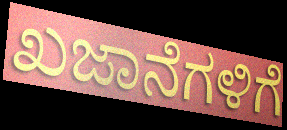
ಖಜಾನೆಗಳಿಗೆ